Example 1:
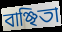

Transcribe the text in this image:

বাঞ্ছিতা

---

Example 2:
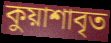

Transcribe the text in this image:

কুয়াশাবৃত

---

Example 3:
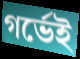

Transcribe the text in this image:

গর্ভেই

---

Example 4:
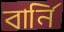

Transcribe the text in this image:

বার্নি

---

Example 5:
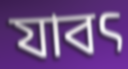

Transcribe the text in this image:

যাবৎ